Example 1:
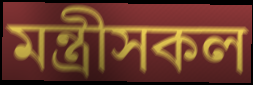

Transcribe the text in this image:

মন্ত্ৰীসকল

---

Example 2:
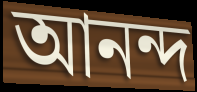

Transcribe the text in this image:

আনন্দ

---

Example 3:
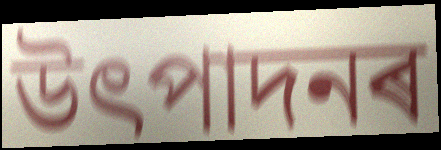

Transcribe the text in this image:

উৎপাদনৰ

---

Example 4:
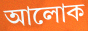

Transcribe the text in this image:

আলোক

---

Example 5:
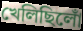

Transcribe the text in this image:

খেলিছিলোঁ